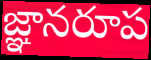
జ్ఞానరూప